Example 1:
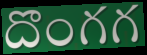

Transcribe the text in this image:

దొంగగ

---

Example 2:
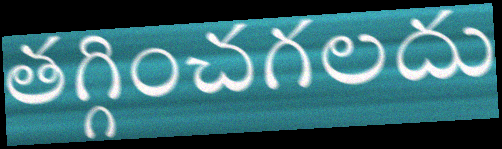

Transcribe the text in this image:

తగ్గించగలదు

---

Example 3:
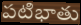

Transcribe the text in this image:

పటిభాతు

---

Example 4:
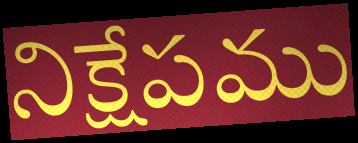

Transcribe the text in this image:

నిక్షేపము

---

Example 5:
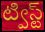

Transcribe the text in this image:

ట్విస్ట్